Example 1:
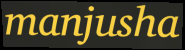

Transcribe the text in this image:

manjusha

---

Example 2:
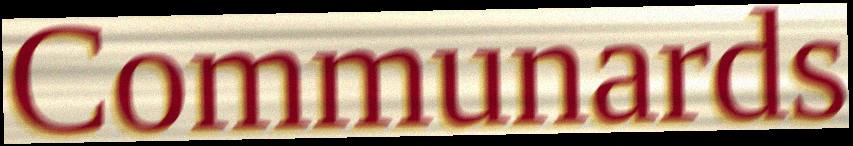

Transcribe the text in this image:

Communards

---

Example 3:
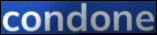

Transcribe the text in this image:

condone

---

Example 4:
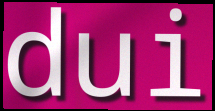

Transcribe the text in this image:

dui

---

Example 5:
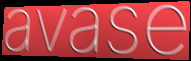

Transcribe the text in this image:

avase